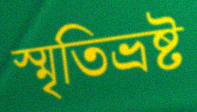
স্মৃতিভ্রষ্ট